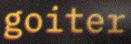
goiter